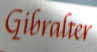
Gibralter